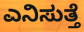
ಎನಿಸುತ್ತೆ